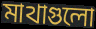
মাথাগুলো